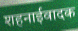
शहनाईवादक